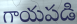
గాయపడి